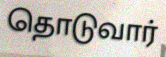
தொடுவார்